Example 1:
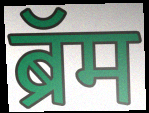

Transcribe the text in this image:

ब्रॅम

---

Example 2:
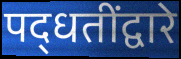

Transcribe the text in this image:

पद्धतींद्वारे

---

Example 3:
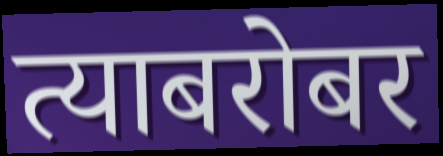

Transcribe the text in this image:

त्याबरोबर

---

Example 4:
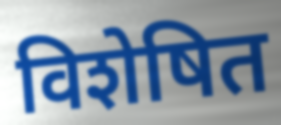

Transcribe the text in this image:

विशेषित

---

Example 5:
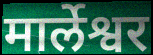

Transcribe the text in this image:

मार्लेश्वर